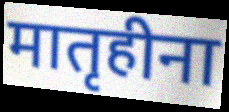
मातृहीना